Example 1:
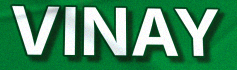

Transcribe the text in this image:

VINAY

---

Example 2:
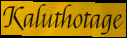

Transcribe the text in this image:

Kaluthotage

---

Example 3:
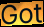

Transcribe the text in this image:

Got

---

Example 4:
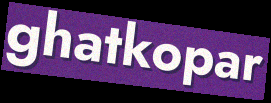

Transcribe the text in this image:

ghatkopar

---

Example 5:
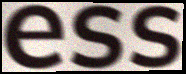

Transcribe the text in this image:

ess